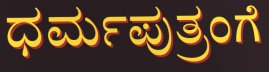
ಧರ್ಮಪುತ್ರಂಗೆ